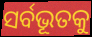
ସର୍ବଭୂତକୁ